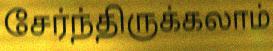
சேர்ந்திருக்கலாம்